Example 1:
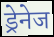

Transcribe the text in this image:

ड्रेनेज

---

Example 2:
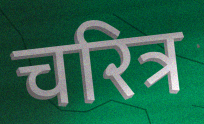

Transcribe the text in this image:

चरित्र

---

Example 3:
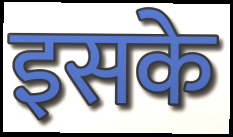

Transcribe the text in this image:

इसके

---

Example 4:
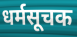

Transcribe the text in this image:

धर्मसूचक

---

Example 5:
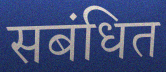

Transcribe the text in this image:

सबंधित